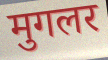
मुगलर